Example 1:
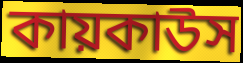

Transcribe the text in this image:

কায়কাউস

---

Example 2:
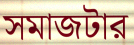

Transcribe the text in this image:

সমাজটার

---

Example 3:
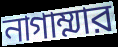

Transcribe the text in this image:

নাগাম্মার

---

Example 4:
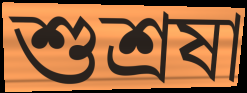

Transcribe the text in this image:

শুশ্রষা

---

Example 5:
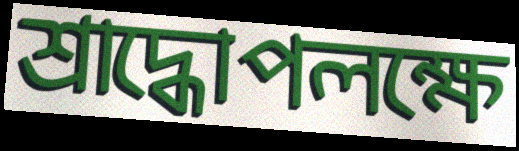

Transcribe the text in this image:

শ্রাদ্ধোপলক্ষে